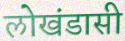
लोखंडासी